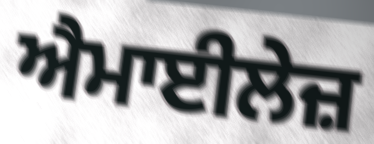
ਐਮਾਈਲੇਜ਼